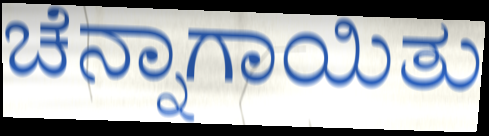
ಚೆನ್ನಾಗಾಯಿತು